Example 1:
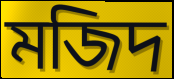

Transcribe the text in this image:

মজিদ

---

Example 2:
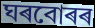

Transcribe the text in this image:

ঘৰবোৰৰ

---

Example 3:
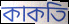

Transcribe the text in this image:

কাকতি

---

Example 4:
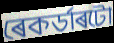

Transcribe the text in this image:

ৰেকৰ্ডাৰটো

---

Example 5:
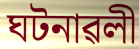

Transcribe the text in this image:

ঘটনাৱলী